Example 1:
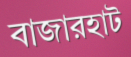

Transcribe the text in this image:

বাজারহাট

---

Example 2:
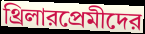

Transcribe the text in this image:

থ্রিলারপ্রেমীদের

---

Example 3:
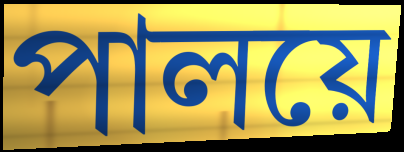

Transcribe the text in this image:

পালয়ে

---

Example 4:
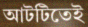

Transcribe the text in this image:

আটটিতেই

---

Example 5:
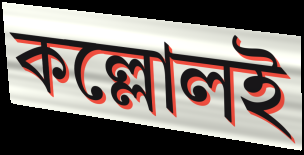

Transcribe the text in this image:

কল্লোলই